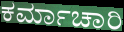
ಕರ್ಮಾಚಾರಿ